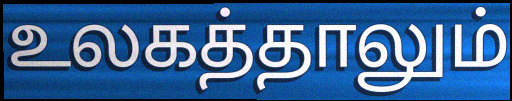
உலகத்தாலும்